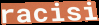
racisi